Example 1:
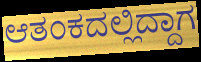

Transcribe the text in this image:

ಆತಂಕದಲ್ಲಿದ್ದಾಗ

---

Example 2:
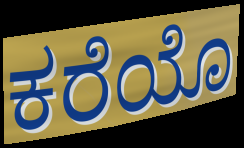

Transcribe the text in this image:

ಕರೆಯೊ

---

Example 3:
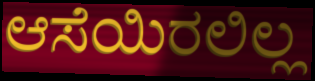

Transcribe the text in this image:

ಆಸೆಯಿರಲಿಲ್ಲ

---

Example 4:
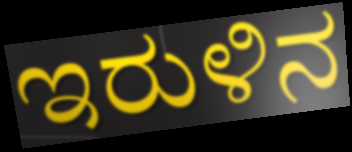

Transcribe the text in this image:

ಇರುಳಿನ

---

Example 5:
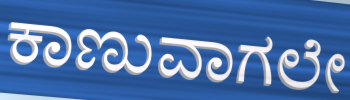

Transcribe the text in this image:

ಕಾಣುವಾಗಲೇ